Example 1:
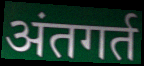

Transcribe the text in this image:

अंतगर्त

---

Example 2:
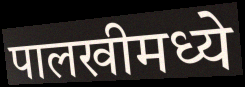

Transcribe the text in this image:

पालखीमध्ये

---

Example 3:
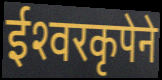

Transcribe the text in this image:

ईश्वरकृपेने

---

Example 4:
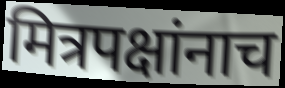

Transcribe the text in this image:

मित्रपक्षांनाच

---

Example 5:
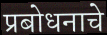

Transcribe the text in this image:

प्रबोधनाचे